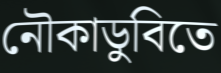
নৌকাডুবিতে